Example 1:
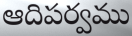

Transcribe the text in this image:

ఆదిపర్వము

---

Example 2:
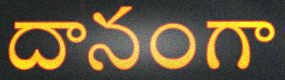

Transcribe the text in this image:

దానంగా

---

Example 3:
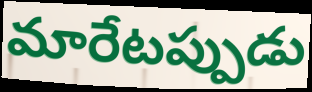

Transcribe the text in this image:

మారేటప్పుడు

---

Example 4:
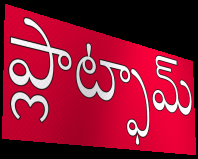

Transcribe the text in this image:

ప్లాట్ఫామ్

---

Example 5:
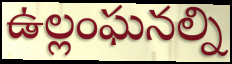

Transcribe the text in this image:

ఉల్లంఘనల్ని